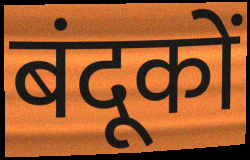
बंदूकों